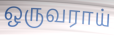
ஒருவராய்